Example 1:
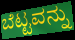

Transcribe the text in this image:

ಬೆಟ್ಟವನ್ನು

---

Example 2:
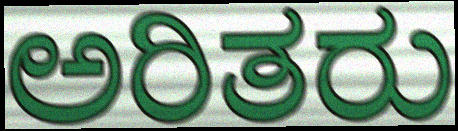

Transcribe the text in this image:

ಅರಿತರು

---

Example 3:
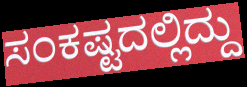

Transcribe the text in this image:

ಸಂಕಷ್ಟದಲ್ಲಿದ್ದು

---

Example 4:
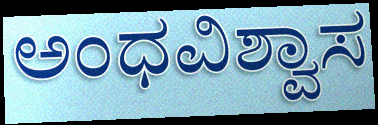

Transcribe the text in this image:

ಅಂಧವಿಶ್ವಾಸ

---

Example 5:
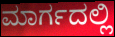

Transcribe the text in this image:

ಮಾರ್ಗದಲ್ಲಿ